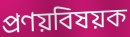
প্রণয়বিষয়ক